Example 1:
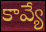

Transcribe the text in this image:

కావ్యే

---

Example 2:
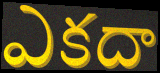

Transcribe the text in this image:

ఎకదా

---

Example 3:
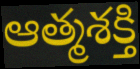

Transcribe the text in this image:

ఆత్మశక్తి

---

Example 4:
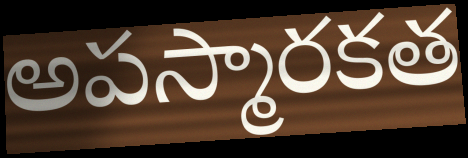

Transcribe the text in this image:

అపస్మారకత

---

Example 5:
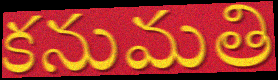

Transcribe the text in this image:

కనుమతి